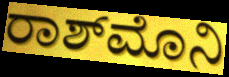
ರಾಶ್‌ಮೊನಿ